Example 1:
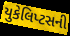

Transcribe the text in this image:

યુકેલિપ્ટસની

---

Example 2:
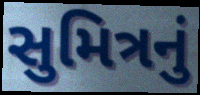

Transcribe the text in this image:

સુમિત્રનું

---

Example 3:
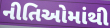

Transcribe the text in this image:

નીતિઓમાંથી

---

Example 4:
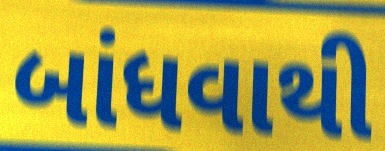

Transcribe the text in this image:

બાંધવાથી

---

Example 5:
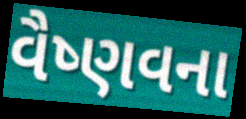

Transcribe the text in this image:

વૈષ્ણવના